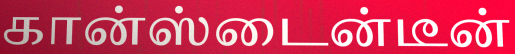
கான்ஸ்டைன்டீன்